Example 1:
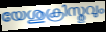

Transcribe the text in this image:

യേശുക്രിസ്തുവും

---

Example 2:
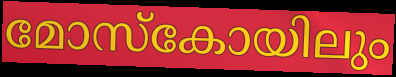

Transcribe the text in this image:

മോസ്കോയിലും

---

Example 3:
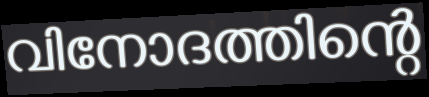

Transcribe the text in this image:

വിനോദത്തിന്റെ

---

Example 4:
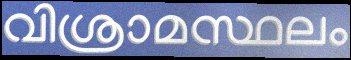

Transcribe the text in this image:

വിശ്രാമസ്ഥലം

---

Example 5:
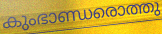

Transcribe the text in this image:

കുംഭാണ്ഡരൊത്തു